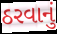
ઠરવાનું